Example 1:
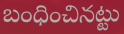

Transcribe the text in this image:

బంధించినట్టు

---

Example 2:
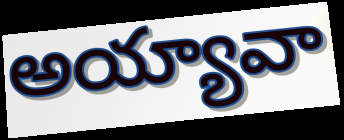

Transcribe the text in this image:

అయ్యావా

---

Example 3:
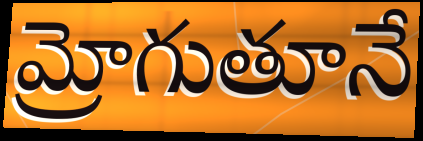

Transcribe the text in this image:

మ్రోగుతూనే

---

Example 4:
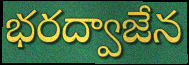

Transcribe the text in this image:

భరద్వాజేన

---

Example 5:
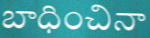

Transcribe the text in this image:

బాధించినా